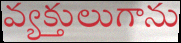
వ్యక్తులుగాను